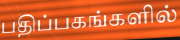
பதிப்பகங்களில்